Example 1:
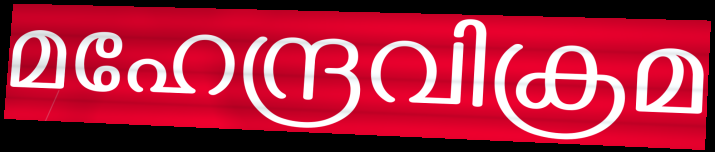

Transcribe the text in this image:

മഹേന്ദ്രവിക്രമ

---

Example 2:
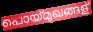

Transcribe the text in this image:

പൊയ്മുഖങ്ങള്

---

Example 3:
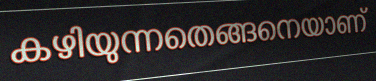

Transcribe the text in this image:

കഴിയുന്നതെങ്ങനെയാണ്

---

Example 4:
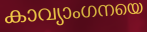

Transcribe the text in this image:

കാവ്യാംഗനയെ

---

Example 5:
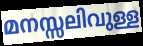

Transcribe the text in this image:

മനസ്സലിവുള്ള